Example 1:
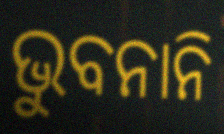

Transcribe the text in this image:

ଭୁବନାନି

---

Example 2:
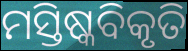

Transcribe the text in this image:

ମସ୍ତିଷ୍କବିକୃତି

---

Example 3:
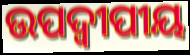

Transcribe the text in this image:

ଉପଦ୍ଵୀପୀୟ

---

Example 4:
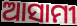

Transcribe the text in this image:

ଆସାମୀ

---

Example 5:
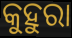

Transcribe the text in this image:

କୁହୁରା